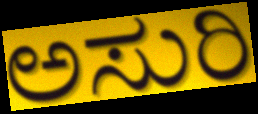
ಅಸುರಿ